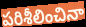
పరిశీలించినా